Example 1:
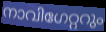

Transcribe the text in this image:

നാവിഗേറ്ററും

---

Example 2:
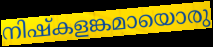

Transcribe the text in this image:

നിഷ്കളങ്കമായൊരു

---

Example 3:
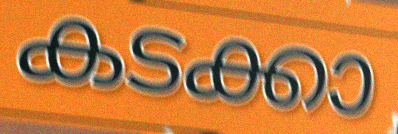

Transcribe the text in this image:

കടക്കാ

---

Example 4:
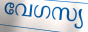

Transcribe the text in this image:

വേഗസ്യ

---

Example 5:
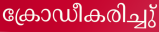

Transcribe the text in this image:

ക്രോഡീകരിച്ചു്